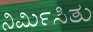
ನಿರ್ಮಿಸಿತು